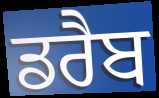
ਡਰੈਬ